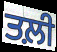
ਤਲ਼ੀ